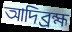
আদিব্রহ্ম